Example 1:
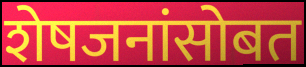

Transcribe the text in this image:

शेषजनांसोबत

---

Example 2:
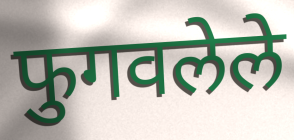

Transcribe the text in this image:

फुगवलेले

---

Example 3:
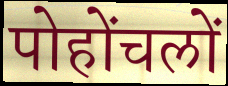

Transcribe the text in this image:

पोहोंचलों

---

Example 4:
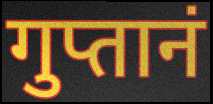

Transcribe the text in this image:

गुप्तानं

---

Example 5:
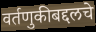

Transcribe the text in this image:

वर्तणुकीबद्दलचे